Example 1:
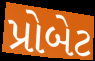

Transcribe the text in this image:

પ્રોબેટ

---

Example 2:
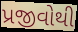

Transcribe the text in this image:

પ્રજીવોથી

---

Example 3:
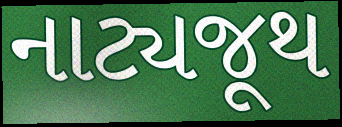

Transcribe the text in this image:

નાટ્યજૂથ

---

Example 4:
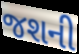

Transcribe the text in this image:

જશની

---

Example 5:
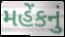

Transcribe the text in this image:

મહેંકનું